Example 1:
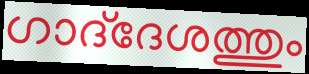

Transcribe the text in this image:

ഗാദ്‌ദേശത്തും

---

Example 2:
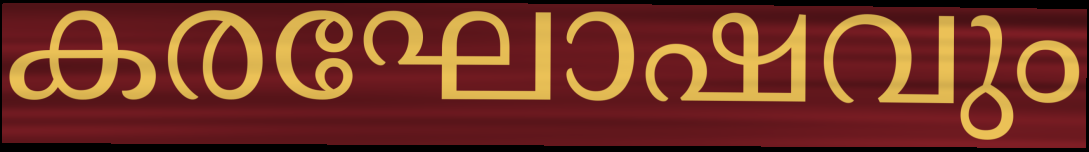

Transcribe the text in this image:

കരഘോഷവും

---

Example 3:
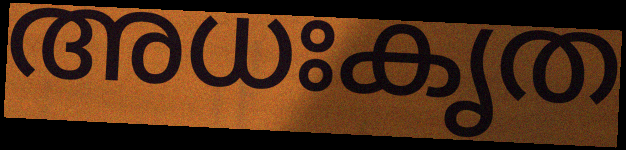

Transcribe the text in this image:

അധഃകൃത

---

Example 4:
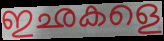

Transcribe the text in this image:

ഇഛകളെ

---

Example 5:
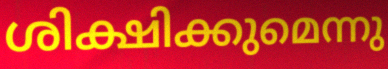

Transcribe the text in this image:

ശിക്ഷിക്കുമെന്നു